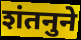
शंतनुने